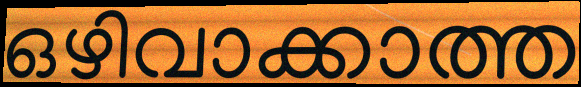
ഒഴിവാക്കാത്ത